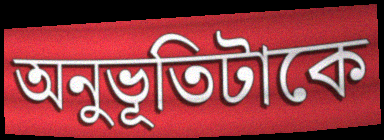
অনুভূতিটাকে